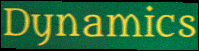
Dynamics